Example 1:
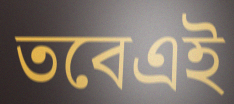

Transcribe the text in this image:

তবেএই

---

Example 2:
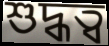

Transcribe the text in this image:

শুদ্ধত্ব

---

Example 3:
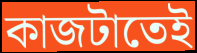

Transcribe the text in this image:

কাজটাতেই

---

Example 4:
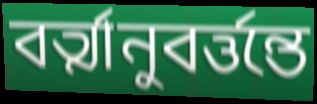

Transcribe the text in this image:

বর্ত্মানুবর্ত্তন্তে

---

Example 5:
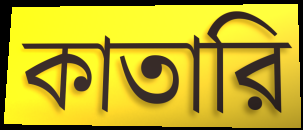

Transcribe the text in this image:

কাতারি